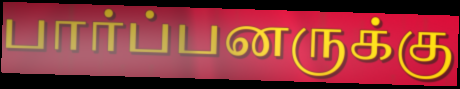
பார்ப்பனருக்கு